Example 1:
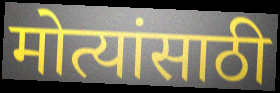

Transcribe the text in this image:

मोत्यांसाठी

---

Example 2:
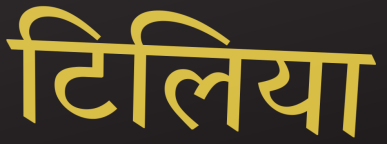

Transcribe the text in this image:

टिलिया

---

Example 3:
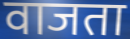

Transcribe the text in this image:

वाजता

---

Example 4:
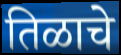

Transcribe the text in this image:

तिळाचे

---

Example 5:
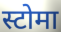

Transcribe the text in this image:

स्टोमा